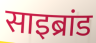
साइब्रांड